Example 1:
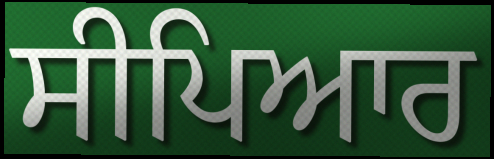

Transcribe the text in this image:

ਸੀਪਿਆਰ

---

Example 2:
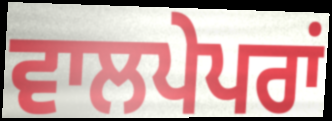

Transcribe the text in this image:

ਵਾਲਪੇਪਰਾਂ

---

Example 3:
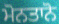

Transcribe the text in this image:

ਮੋਨਤਾਨੋ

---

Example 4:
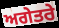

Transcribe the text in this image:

ਅਗੇਤਰੇ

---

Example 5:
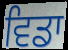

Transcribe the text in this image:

ਵਿਡਾ